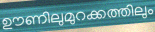
ഊണിലുമുറക്കത്തിലും